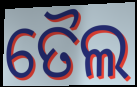
ତୈଲ